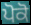
ਪੋਕੋ